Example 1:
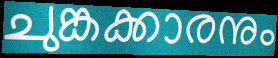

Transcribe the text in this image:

ചുങ്കക്കാരനും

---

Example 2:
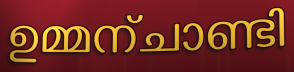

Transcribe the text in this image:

ഉമ്മന്ചാണ്ടി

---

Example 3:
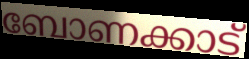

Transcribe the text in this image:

ബോണക്കാട്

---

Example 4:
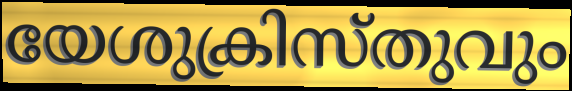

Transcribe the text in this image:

യേശുക്രിസ്തുവും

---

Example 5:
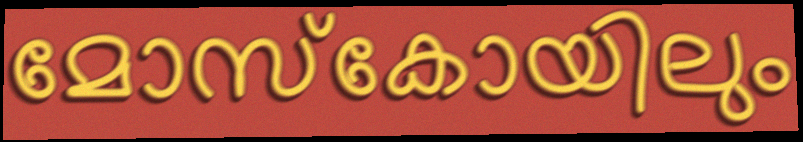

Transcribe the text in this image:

മോസ്കോയിലും